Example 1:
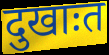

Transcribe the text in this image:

दुखाःत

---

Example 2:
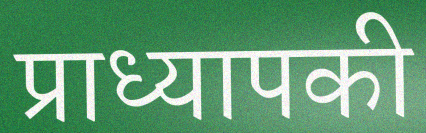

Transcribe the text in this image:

प्राध्यापकी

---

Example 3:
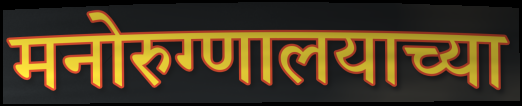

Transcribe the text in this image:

मनोरुग्णालयाच्या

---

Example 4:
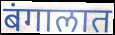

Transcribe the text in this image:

बंगालात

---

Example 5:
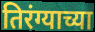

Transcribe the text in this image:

तिरंग्याच्या